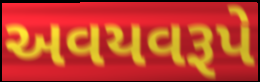
અવયવરૂપે